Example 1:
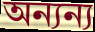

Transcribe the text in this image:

অন্যন্য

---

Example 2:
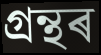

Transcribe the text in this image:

গ্ৰন্থৰ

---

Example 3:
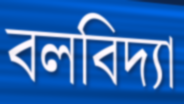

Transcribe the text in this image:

বলবিদ্যা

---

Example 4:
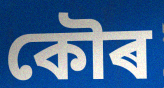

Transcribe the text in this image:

কৌৰ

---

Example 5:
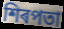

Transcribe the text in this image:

শিৰপতা